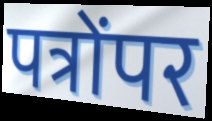
पत्रोंपर